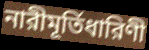
নারীমূর্তিধারিণী